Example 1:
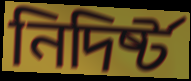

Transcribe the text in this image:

নিদিৰ্ষ্ট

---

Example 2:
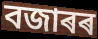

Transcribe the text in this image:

বজাৰৰ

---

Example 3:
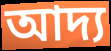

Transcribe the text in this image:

আদ্য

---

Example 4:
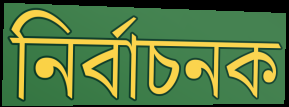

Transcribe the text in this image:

নিৰ্বাচনক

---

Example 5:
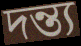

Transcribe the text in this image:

দন্ত্য